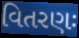
વિતરણઃ